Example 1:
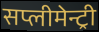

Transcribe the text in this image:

सप्लीमेन्ट्री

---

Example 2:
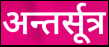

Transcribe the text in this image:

अन्तर्सूत्र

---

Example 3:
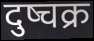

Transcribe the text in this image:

दुष्चक्र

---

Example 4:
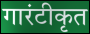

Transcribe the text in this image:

गारंटीकृत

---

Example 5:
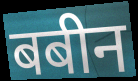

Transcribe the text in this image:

बबीन